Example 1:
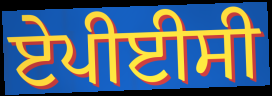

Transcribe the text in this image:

ਏਪੀਈਸੀ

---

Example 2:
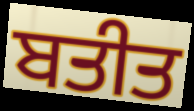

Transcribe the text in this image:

ਬਤੀਤ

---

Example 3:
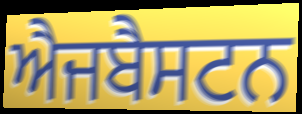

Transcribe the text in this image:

ਐਜਬੈਸਟਨ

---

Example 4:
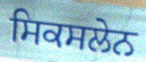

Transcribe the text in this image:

ਸਿਕਸਲੇਨ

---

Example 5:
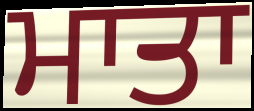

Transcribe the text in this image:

ਮਾਤਾ